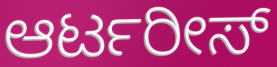
ಆರ್ಟರೀಸ್